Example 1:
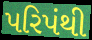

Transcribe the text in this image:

પરિપંથી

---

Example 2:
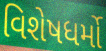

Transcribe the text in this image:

વિશેષધર્મો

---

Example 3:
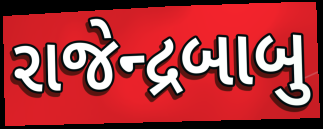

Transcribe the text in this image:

રાજેન્દ્રબાબુ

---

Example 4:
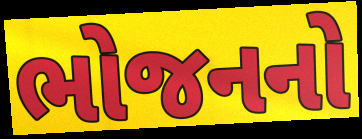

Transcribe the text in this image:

ભોજનનો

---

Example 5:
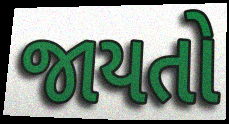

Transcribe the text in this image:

જાયતો